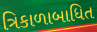
ત્રિકાળાબાધિત